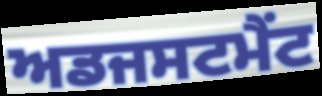
ਅਡਜਸਟਮੈਂਟ